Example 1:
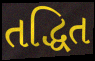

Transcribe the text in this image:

તદ્ધિત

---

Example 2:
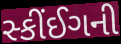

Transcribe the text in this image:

સ્કીંઈગની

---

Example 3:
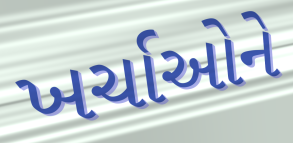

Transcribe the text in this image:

ખર્ચાઓને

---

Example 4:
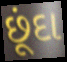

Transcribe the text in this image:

છૂંદા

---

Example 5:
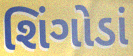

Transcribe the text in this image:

શિંગોડાં